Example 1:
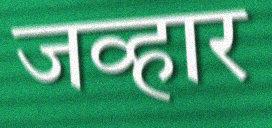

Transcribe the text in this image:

जव्हार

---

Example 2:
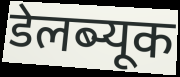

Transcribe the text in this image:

डेलब्ऱ्यूक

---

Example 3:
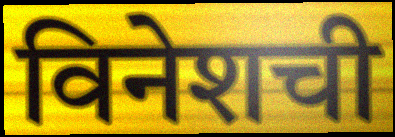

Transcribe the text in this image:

विनेशची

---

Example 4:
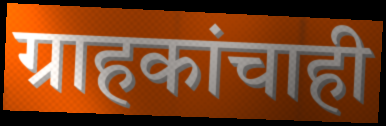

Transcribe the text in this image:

ग्राहकांचाही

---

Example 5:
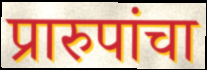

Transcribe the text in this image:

प्रारुपांचा